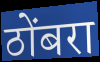
ठोंबरा